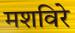
मशविरे